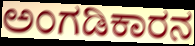
ಅಂಗಡಿಕಾರನ